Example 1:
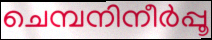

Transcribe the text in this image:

ചെമ്പനിനീർപ്പൂ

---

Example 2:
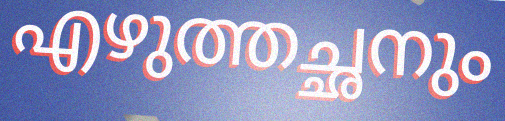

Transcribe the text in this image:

എഴുത്തച്ഛനും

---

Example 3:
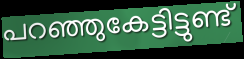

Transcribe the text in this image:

പറഞ്ഞുകേട്ടിട്ടുണ്ട്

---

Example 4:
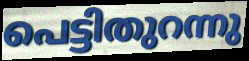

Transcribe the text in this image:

പെട്ടിതുറന്നു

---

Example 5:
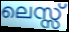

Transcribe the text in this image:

ലെസ്സ്